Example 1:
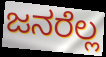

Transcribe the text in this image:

ಜನರೆಲ್ಲ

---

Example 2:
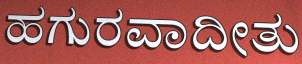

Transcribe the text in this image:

ಹಗುರವಾದೀತು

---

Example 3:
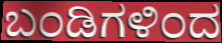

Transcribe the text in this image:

ಬಂಡಿಗಳಿಂದ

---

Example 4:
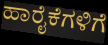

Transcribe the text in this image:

ಹಾರೈಕೆಗಳಿಗೆ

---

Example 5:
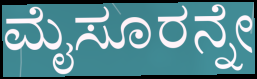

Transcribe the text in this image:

ಮೈಸೂರನ್ನೇ